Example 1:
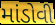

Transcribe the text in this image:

માંડોવી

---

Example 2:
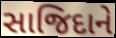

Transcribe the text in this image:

સાજિદાને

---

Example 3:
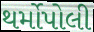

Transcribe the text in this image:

થર્મોપોલી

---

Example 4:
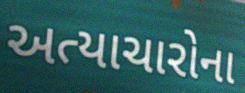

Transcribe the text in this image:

અત્યાચારોના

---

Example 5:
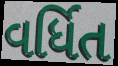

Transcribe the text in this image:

વર્ધિત